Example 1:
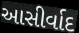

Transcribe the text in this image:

આસીર્વાદ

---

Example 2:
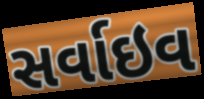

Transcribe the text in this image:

સર્વાઇવ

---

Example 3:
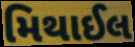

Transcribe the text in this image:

મિથાઈલ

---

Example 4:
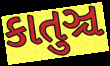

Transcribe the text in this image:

કાતુઞ્ચ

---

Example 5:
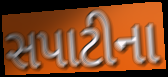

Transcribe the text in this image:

સપાટીના